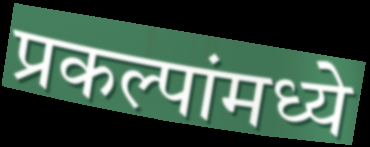
प्रकल्पांमध्ये